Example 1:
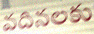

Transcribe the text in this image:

వదినలకు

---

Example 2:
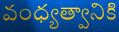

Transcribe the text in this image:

వంధ్యత్వానికి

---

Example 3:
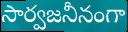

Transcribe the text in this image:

సార్వజనీనంగా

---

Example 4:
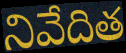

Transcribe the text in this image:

నివేదిత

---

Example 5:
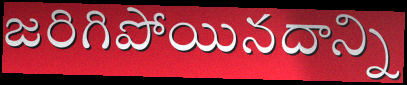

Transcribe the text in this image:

జరిగిపోయినదాన్ని